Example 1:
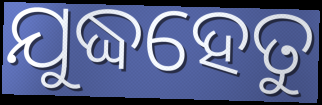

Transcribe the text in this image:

ଯୁଦ୍ଧହେତୁ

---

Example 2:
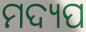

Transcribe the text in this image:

ମଦ୍ୟପ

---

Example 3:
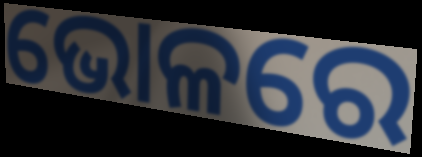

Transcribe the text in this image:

ଭୋଳରେ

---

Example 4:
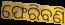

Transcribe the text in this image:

ଫେରିବଣି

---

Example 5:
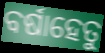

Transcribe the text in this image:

ବର୍ଷାହେତୁ